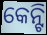
କେନ୍ଟି